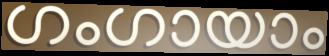
ഗംഗായാം